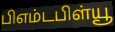
பிஎம்டபிள்யூ